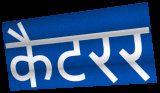
कैटरर